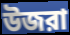
উজরা